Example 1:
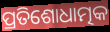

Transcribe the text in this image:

ପ୍ରତିଶୋଧାତ୍ମକ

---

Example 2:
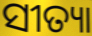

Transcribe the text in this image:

ସୀତ୍ୟା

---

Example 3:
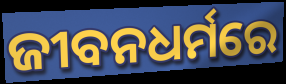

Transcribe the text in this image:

ଜୀବନଧର୍ମରେ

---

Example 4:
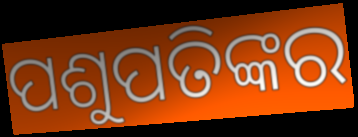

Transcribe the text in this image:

ପଶୁପତିଙ୍କର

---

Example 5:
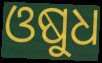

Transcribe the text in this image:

ଓଷୁଧ